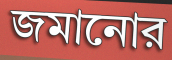
জমানোর